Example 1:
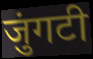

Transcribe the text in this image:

जुंगटी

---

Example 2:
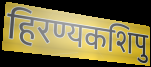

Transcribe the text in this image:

हिरण्यकशिपु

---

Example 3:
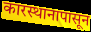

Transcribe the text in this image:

कारस्थानापासून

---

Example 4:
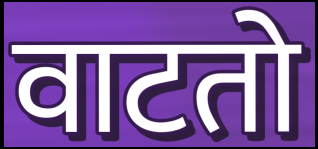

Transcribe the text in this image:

वाटतो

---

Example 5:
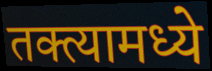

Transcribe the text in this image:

तक्त्यामध्ये